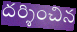
దర్శించిన